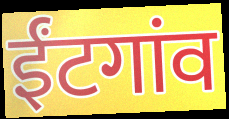
ईंटगांव